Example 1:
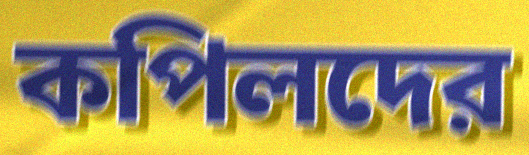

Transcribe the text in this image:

কপিলদের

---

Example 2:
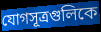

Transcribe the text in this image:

যোগসূত্রগুলিকে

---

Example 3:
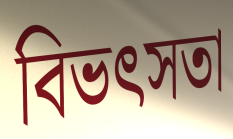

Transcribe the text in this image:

বিভৎসতা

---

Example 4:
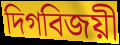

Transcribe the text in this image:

দিগবিজয়ী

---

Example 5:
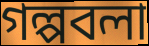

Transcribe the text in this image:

গল্পবলা